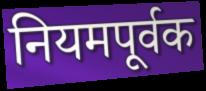
नियमपूर्वक